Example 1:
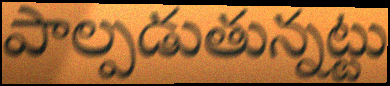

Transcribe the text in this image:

పాల్పడుతున్నట్టు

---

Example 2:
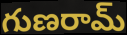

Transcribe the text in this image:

గుణరామ్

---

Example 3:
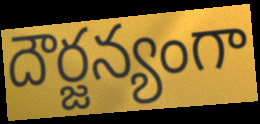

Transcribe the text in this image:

దౌర్జన్యంగా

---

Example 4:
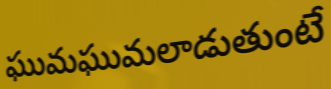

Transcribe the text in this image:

ఘుమఘుమలాడుతుంటే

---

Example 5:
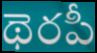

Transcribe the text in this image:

థెరపీ